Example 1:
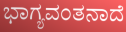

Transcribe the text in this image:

ಭಾಗ್ಯವಂತನಾದೆ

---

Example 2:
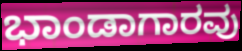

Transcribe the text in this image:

ಭಾಂಡಾಗಾರವು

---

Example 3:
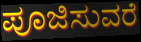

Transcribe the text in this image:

ಪೂಜಿಸುವರೆ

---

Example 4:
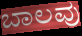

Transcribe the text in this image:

ಬಾಲವು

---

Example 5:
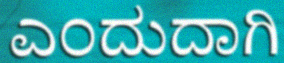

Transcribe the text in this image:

ಎಂದುದಾಗಿ